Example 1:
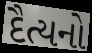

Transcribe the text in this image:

દૈત્યનો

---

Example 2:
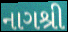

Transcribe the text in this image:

નાગશ્રી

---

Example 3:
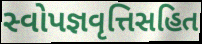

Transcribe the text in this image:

સ્વોપજ્ઞવૃત્તિસહિત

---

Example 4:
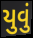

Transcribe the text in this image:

યુવું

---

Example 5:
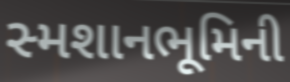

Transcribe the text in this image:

સ્મશાનભૂમિની